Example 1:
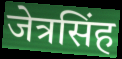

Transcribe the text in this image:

जेत्रसिंह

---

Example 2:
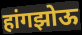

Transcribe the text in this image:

हांगझोऊ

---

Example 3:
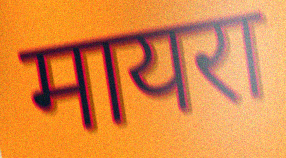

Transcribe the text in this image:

मायरा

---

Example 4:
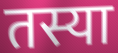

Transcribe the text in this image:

तस्या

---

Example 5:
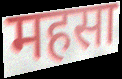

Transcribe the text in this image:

महसा